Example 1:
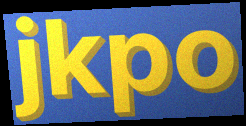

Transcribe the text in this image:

jkpo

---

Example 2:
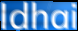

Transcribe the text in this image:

Idhai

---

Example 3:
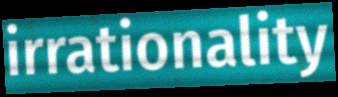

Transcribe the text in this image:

irrationality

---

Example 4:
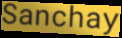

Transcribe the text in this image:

Sanchay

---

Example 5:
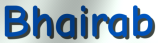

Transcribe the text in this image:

Bhairab